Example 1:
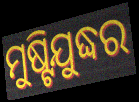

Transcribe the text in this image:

ମୁଷ୍ଟିଯୁଦ୍ଧର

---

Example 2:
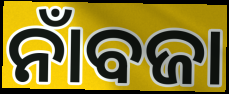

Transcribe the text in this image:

ନାଁବଜା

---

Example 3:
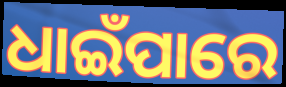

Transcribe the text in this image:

ଧାଇଁପାରେ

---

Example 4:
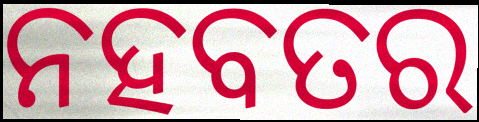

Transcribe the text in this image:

ନହବତର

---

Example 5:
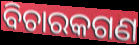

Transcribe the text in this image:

ବିଚାରକଗଣ